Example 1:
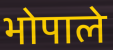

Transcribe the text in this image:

भोपाले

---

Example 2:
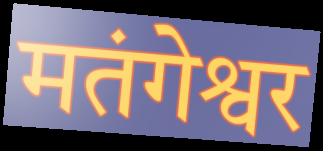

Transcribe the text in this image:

मतंगेश्वर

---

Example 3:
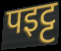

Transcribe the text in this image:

पइट्ट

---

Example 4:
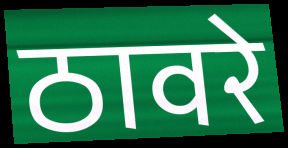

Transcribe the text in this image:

ठावरे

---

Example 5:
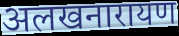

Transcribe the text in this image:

अलखनारायण